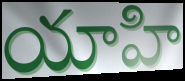
యాహి